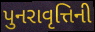
પુનરાવૃત્તિની